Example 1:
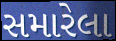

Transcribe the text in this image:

સમારેલા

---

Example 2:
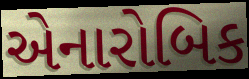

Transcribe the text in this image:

એનારોબિક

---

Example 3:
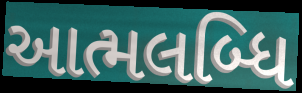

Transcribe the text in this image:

આત્મલબ્ધિ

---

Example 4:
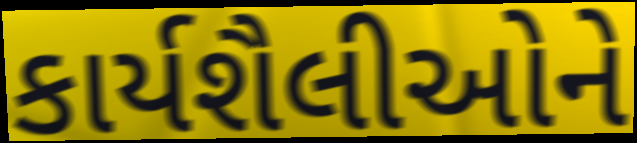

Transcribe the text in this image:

કાર્યશૈલીઓને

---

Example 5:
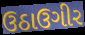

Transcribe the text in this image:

ઉઠાઉગીર